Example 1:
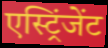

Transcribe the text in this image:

एस्ट्रिंजेंट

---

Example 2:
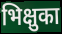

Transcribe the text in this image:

भिक्षुका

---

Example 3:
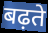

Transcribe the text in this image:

बढ़ते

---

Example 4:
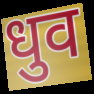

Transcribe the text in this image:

धुव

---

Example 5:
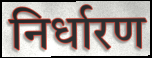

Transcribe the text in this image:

निर्धारण